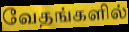
வேதங்களில்